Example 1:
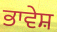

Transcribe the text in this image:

ਭਾਵੇਸ਼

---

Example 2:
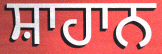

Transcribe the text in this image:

ਸ਼ਾਹਾਨ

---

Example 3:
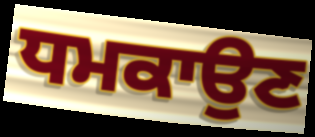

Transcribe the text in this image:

ਧਮਕਾਉਣ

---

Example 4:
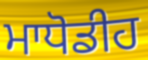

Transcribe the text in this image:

ਮਾਧੋਡੀਹ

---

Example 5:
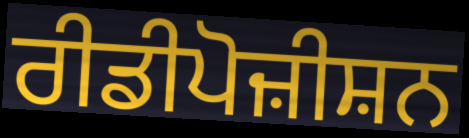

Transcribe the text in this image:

ਰੀਡੀਪੋਜ਼ੀਸ਼ਨ